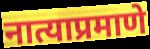
नात्याप्रमाणे